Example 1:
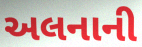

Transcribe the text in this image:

અલનાની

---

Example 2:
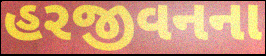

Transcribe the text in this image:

હરજીવનના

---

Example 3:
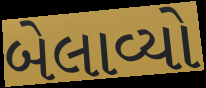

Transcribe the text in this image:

બેલાવ્યો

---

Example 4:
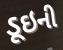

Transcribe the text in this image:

ડૂઇની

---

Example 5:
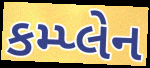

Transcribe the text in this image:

કમ્પ્લેન